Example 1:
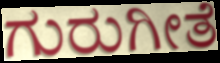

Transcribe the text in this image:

ಗುರುಗೀತೆ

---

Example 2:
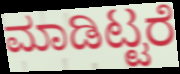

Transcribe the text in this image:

ಮಾಡಿಟ್ಟರೆ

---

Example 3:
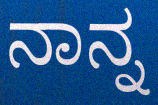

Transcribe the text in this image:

ನಾನ್ನ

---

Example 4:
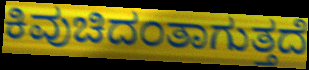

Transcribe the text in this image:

ಕಿವುಚಿದಂತಾಗುತ್ತದೆ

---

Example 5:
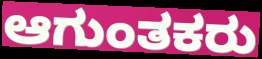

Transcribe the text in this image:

ಆಗುಂತಕರು